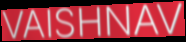
VAISHNAV